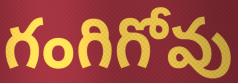
గంగిగోవు